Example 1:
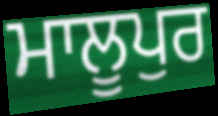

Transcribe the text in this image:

ਮਾਲੂਪੁਰ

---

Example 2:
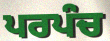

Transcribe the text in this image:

ਪਰਪੰਚ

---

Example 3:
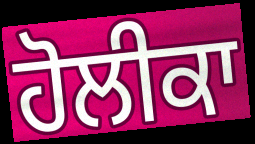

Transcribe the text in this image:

ਹੋਲੀਕਾ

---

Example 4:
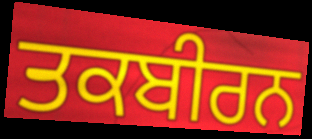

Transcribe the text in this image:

ਤਕਬੀਰਨ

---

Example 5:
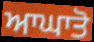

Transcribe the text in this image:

ਆਘਾਤੋ